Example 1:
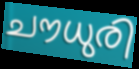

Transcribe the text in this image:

ചൗധുരി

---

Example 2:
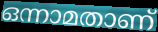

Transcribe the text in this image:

ഒന്നാമതാണ്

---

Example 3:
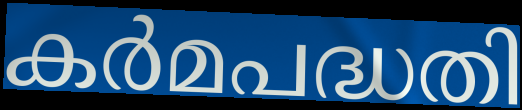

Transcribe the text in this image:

കർമപദ്ധതി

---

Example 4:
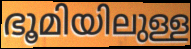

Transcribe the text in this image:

ഭൂമിയിലുള്ള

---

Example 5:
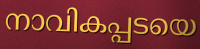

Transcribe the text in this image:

നാവികപ്പടയെ